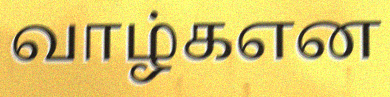
வாழ்கஎன